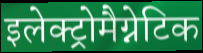
इलेक्ट्रोमैग्नेटिक